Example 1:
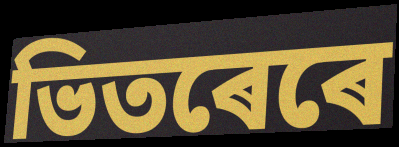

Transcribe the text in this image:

ভিতৰেৰে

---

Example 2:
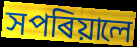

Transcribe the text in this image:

সপৰিয়ালে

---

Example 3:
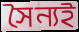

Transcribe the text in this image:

সৈন্যই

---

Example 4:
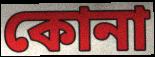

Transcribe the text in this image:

কোনা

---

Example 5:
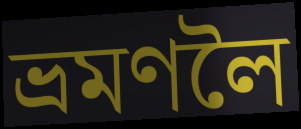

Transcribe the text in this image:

ভ্ৰমণলৈ